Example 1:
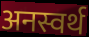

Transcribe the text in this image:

अनस्वर्थ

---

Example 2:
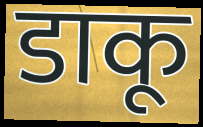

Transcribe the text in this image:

डाकू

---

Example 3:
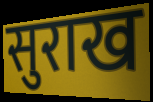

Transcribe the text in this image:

सुराख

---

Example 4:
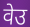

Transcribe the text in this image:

वेउ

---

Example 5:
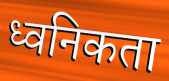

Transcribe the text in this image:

ध्वनिकता